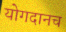
योगदानच